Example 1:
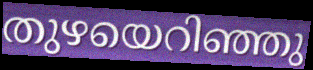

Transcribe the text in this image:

തുഴയെറിഞ്ഞു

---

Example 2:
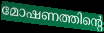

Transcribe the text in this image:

മോഷണത്തിന്റെ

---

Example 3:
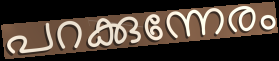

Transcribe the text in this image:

പറക്കുന്നേരം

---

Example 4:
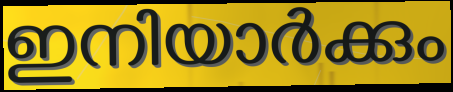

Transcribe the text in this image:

ഇനിയാർക്കും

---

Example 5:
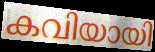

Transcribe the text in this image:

കവിയായി